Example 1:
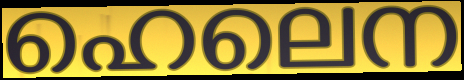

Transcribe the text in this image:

ഹെലെന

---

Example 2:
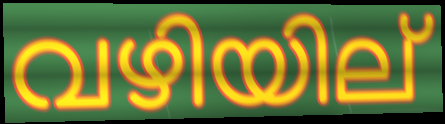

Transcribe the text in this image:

വഴിയില്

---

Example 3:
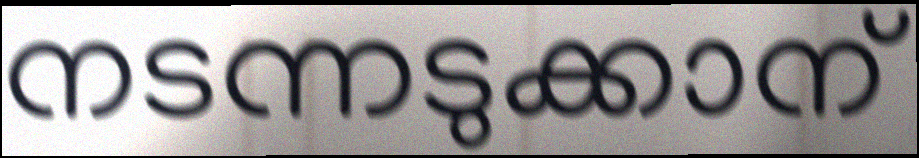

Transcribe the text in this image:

നടന്നടുക്കാന്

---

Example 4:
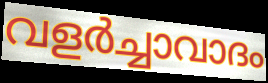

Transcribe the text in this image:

വളർച്ചാവാദം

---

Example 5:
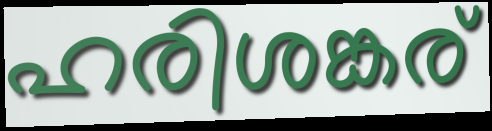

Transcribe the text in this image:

ഹരിശങ്കര്